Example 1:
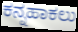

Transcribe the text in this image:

ಕನ್ನಹಾಕಲು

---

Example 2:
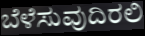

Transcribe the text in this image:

ಬೆಳೆಸುವುದಿರಲಿ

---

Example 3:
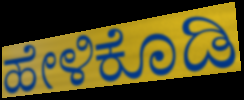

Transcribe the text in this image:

ಹೇಳಿಕೊಡಿ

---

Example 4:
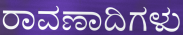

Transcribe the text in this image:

ರಾವಣಾದಿಗಳು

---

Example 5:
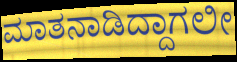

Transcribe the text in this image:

ಮಾತನಾಡಿದ್ದಾಗಲೀ